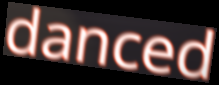
danced